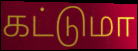
கட்டுமா